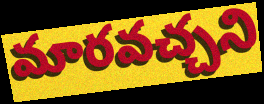
మారవచ్చని